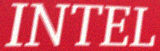
INTEL